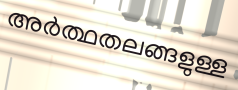
അർത്ഥതലങ്ങളുള്ള